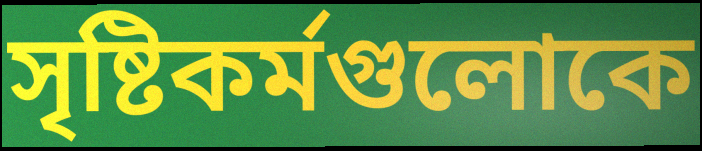
সৃষ্টিকর্মগুলোকে